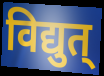
विद्युत्